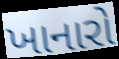
ખાનારો